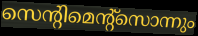
സെന്റിമെന്റ്സൊന്നും